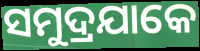
ସମୁଦ୍ରଯାକେ